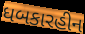
ધબકારહીન